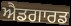
ਐਡਗਾਰਡ